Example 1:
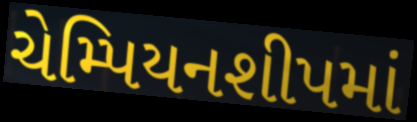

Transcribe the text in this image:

ચેમ્પિયનશીપમાં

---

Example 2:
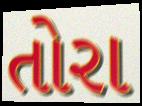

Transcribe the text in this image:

તોરા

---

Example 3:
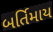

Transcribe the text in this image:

બર્તિમાય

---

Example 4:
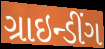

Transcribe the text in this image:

ગ્રાઇન્ડીંગ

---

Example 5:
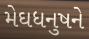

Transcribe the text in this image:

મેઘધનુષને